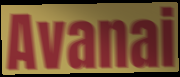
Avanai